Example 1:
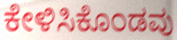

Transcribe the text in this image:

ಕೇಳಿಸಿಕೊಂಡವು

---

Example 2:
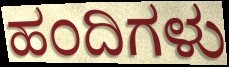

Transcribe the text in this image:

ಹಂದಿಗಳು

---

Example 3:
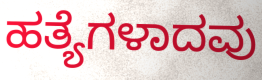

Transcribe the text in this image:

ಹತ್ಯೆಗಳಾದವು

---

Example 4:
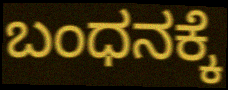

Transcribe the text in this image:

ಬಂಧನಕ್ಕೆ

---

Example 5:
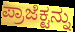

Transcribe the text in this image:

ಪ್ರಾಜೆಕ್ಟನ್ನು